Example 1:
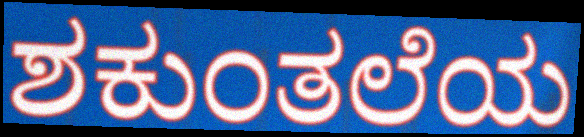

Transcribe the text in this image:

ಶಕುಂತಲೆಯ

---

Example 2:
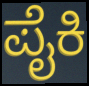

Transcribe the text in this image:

ಪೈಕಿ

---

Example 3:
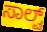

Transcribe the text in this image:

ಸಾಲ್ವ್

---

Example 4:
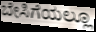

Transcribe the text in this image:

ಬೇಸಿಗೆಯಲ್ಲೂ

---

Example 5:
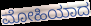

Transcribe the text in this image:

ಮೋಹಿಯಾದ